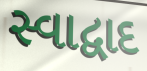
સ્વાદ્વાદ